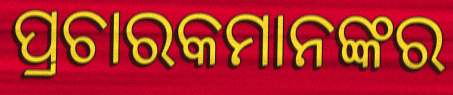
ପ୍ରଚାରକମାନଙ୍କର